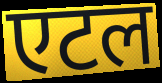
एटल